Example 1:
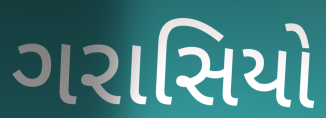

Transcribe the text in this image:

ગરાસિયો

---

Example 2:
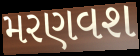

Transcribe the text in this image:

મરણવશ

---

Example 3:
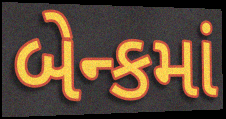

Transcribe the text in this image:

બેન્કમાં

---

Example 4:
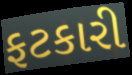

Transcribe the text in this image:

ફટકારી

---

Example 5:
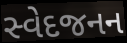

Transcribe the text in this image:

સ્વેદજનન